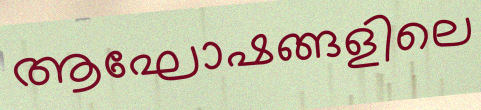
ആഘോഷങ്ങളിലെ